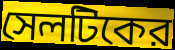
সেলটিকের